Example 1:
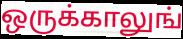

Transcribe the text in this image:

ஒருக்காலுங்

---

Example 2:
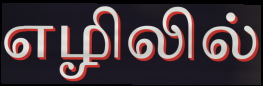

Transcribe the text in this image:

எழிலில்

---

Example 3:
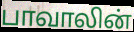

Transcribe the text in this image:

பாவாலின்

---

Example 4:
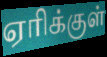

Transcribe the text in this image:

ஏரிக்குள்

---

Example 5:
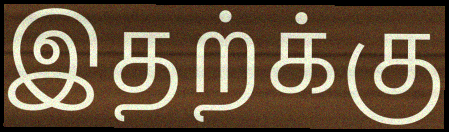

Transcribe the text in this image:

இதற்க்கு